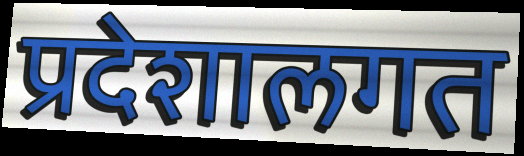
प्रदेशालगत